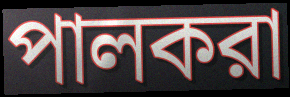
পালকরা